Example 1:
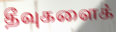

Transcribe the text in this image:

தீவுகளைக்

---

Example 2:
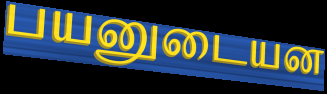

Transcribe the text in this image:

பயனுடையன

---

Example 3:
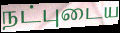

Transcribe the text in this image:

நட்புடைய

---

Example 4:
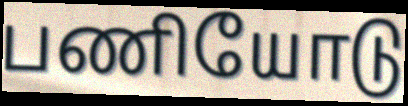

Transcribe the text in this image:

பணியோடு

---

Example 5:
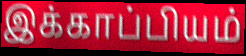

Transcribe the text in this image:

இக்காப்பியம்